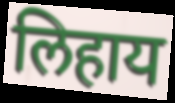
लिहाय